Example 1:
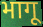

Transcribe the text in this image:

भागू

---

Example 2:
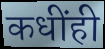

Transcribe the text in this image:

कधींही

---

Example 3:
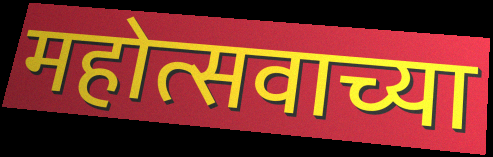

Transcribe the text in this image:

महोत्सवाच्या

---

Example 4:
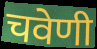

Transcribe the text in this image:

चवेणी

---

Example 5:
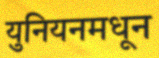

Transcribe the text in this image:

युनियनमधून